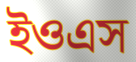
ইওএস